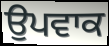
ਉਪਵਾਕ